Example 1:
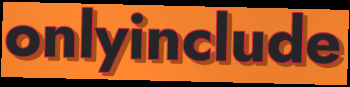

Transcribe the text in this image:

onlyinclude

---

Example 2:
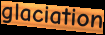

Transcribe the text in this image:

glaciation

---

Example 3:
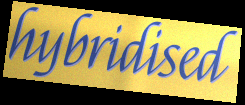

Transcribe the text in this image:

hybridised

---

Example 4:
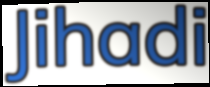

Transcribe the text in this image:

Jihadi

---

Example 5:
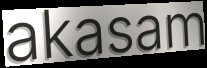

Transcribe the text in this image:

akasam